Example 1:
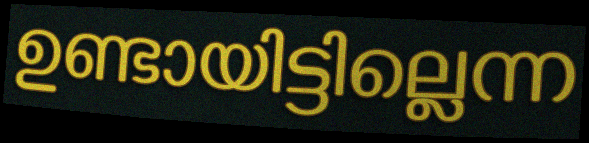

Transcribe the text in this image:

ഉണ്ടായിട്ടില്ലെന്ന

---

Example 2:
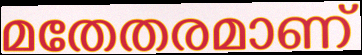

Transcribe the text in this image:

മതേതരമാണ്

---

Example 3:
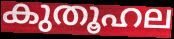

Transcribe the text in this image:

കുതൂഹല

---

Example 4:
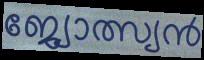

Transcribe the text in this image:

ജ്യോത്സ്യൻ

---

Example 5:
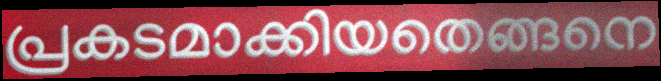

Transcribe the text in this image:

പ്രകടമാക്കിയതെങ്ങനെ